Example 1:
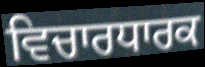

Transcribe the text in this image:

ਵਿਚਾਰਧਾਰਕ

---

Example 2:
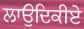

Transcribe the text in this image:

ਲਾਉਦਿਕੀਏ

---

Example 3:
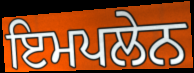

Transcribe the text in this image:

ਇਮਪਲੇਨ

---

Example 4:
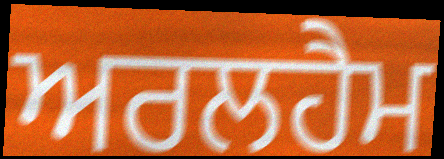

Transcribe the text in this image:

ਅਰਲਹੈਮ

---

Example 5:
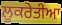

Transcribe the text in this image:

ਲੂਕਰੇਤੀਆ